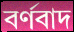
বৰ্ণবাদ